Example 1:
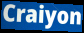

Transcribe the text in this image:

Craiyon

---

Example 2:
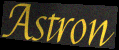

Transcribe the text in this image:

Astron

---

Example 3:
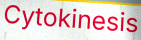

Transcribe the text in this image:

Cytokinesis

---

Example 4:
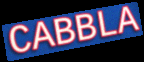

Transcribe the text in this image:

CABBLA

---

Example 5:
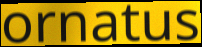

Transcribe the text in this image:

ornatus